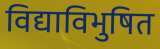
विद्याविभुषित